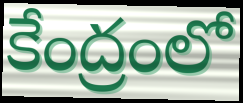
కేంద్రంలో